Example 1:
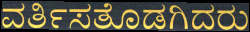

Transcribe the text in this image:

ವರ್ತಿಸತೊಡಗಿದರು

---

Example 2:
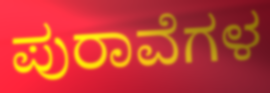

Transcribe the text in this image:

ಪುರಾವೆಗಳ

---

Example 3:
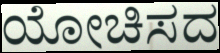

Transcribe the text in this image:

ಯೋಚಿಸದ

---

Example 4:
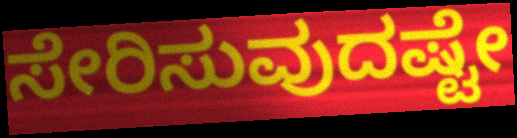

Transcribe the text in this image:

ಸೇರಿಸುವುದಷ್ಟೇ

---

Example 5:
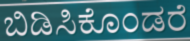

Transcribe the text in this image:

ಬಿಡಿಸಿಕೊಂಡರೆ